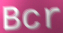
Bcr